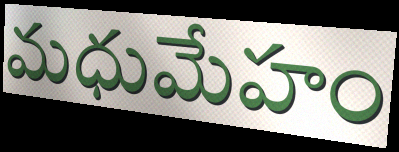
మధుమేహం